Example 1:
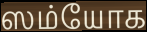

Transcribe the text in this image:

ஸம்யோக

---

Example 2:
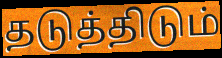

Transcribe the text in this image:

தடுத்திடும்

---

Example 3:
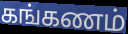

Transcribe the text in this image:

கங்கணம்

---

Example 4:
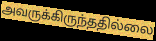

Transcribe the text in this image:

அவருக்கிருந்ததில்லை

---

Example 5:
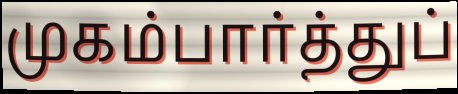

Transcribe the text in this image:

முகம்பார்த்துப்